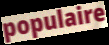
populaire